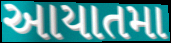
આયાતમા